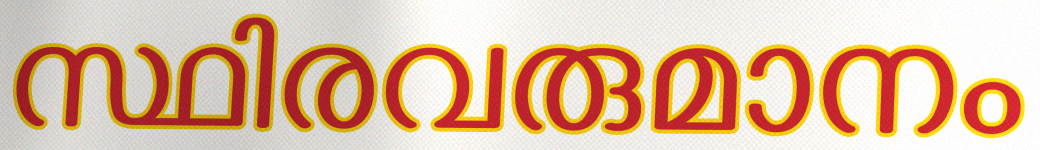
സ്ഥിരവരുമാനം